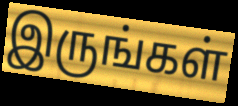
இருங்கள்